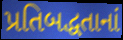
પ્રતિબદ્ધતાનાં